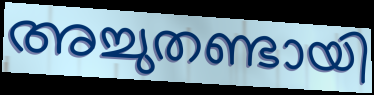
അച്ചുതണ്ടായി